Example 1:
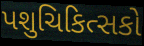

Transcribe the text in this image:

પશુચિકિત્સકો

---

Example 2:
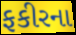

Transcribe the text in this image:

ફકીરના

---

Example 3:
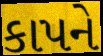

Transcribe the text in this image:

કાપને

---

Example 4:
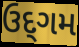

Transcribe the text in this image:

ઉદ્‌ગમ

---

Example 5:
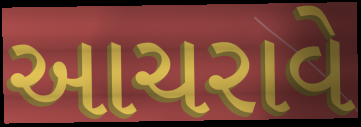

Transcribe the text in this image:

આચરાવે